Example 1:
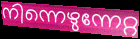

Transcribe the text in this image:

നിന്നെഴുന്നേറ്റ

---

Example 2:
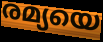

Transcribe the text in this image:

രമ്യയെ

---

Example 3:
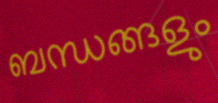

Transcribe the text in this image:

ബന്ധങ്ങളും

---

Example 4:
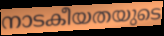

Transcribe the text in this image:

നാടകീയതയുടെ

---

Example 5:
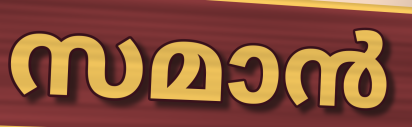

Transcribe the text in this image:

സമാൻ